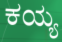
ಕಯ್ಯ